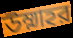
উম্মাহর